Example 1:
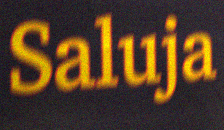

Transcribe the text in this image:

Saluja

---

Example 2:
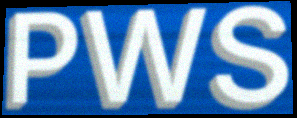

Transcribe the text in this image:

PWS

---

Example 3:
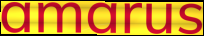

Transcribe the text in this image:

amarus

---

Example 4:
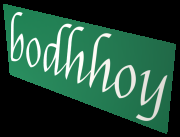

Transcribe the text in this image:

bodhhoy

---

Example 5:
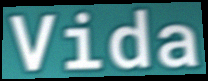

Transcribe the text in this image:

Vida